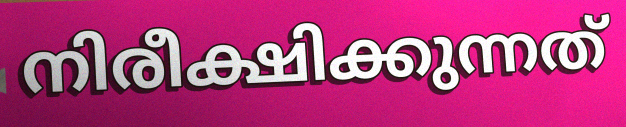
നിരീക്ഷിക്കുന്നത്